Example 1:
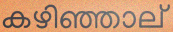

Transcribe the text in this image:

കഴിഞ്ഞാല്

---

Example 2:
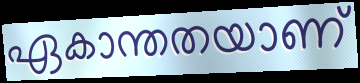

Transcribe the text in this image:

ഏകാന്തതയാണ്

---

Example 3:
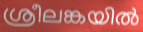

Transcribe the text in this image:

ശ്രീലങ്കയിൽ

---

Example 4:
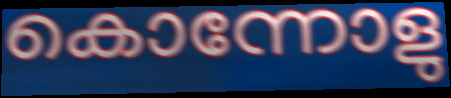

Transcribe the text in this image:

കൊന്നോളു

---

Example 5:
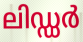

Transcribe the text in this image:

ലിഡ്ഡർ